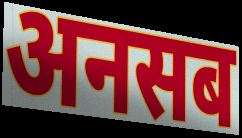
अनसब